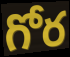
గోర